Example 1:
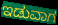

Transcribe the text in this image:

ಇಡುವಾಗ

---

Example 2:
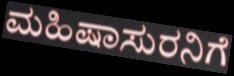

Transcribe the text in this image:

ಮಹಿಷಾಸುರನಿಗೆ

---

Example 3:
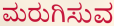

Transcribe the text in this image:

ಮರುಗಿಸುವ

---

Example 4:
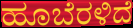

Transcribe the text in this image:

ಹೂಬೆರಳಿದೆ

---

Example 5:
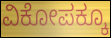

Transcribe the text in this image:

ವಿಕೋಪಕ್ಕೂ